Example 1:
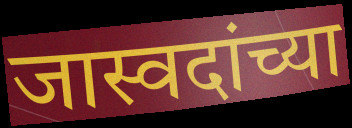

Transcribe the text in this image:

जास्वदांच्या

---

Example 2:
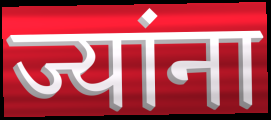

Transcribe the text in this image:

ज्यांना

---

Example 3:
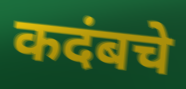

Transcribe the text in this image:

कदंबचे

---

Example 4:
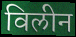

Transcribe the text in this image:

विलीन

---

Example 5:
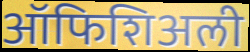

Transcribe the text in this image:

ऑफिशिअली